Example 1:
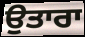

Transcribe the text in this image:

ਉਤਾਰਾ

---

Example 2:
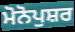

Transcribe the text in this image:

ਮੋਨੋਪੁਸ਼ਰ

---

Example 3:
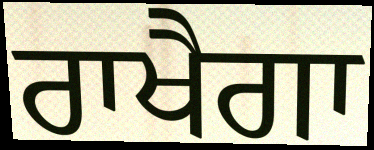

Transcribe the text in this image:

ਰਾਖੈਗਾ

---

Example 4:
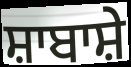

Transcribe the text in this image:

ਸ਼ਾਬਾਸ਼ੇ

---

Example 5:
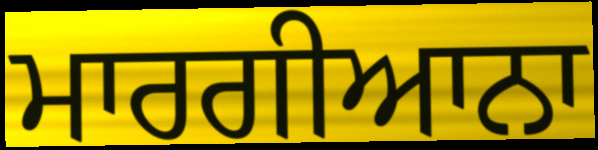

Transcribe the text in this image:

ਮਾਰਗੀਆਨਾ